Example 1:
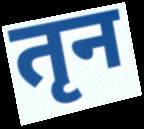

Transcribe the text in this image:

तृन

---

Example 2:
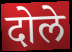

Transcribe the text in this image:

दोले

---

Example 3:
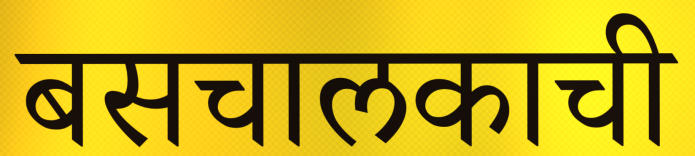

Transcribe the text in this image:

बसचालकाची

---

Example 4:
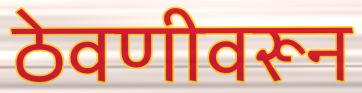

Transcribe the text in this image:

ठेवणीवरून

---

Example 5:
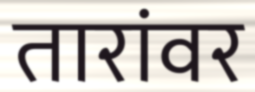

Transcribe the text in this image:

तारांवर